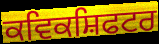
ਕਵਿਕਸ਼ਿਫਟਰ